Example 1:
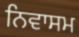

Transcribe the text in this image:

ਨਿਵਾਸਮ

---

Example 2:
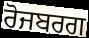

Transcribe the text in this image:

ਰੋਜਬਰਗ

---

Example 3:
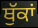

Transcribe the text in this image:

ਥੁੱਕਾਂ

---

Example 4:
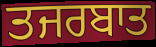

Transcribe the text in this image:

ਤਜਰਬਾਤ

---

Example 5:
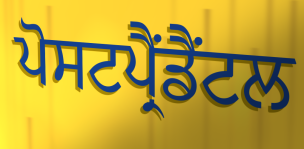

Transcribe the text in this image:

ਪੋਸਟਪ੍ਰੈਂਡੈਂਟਲ